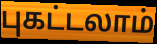
புகட்டலாம்